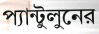
প্যান্টুলুনের